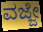
ವಜ್ಜೇ